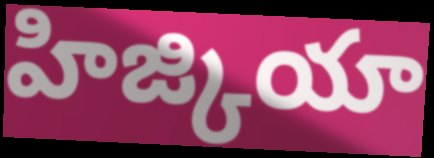
హిజ్కియా